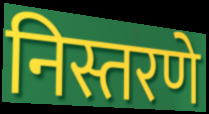
निस्तरणे